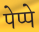
पेप्पे